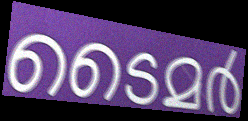
ടൈമർ